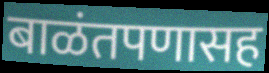
बाळंतपणासह